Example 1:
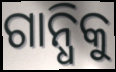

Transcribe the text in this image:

ଗାନ୍ଧିକୁ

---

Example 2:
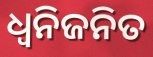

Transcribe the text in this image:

ଧ୍ଵନିଜନିତ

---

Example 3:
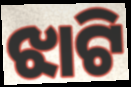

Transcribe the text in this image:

ଝାଟି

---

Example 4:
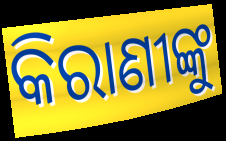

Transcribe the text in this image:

କିରାଣୀଙ୍କୁ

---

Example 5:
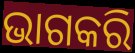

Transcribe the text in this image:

ଭାଗକରି